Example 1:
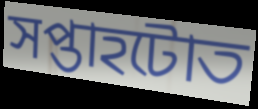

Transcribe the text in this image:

সপ্তাহটোত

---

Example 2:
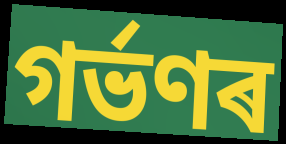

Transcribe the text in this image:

গৰ্ভণৰ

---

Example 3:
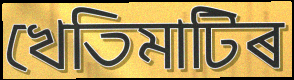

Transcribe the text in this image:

খেতিমাটিৰ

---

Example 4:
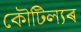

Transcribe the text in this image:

কৌটিল্যৰ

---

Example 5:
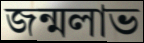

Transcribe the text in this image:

জন্মলাভ